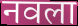
नवला